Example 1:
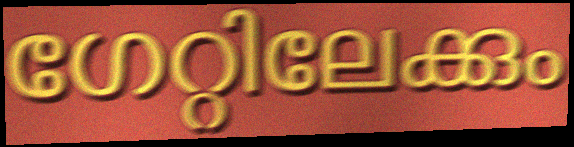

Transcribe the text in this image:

ഗേറ്റിലേക്കും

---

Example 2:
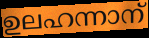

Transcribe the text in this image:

ഉലഹന്നാന്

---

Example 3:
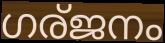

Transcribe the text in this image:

ഗര്ജനം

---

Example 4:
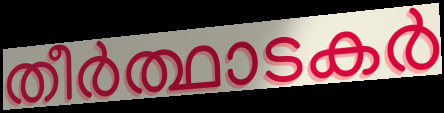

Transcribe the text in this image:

തീർത്ഥാടകർ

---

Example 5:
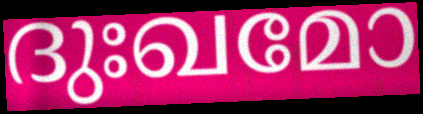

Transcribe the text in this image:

ദുഃഖമോ